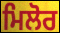
ਮਿਲੋਰ